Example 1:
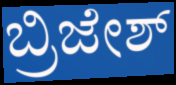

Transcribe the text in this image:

ಬ್ರಿಜೇಶ್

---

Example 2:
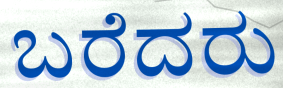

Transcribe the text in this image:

ಬರೆದರು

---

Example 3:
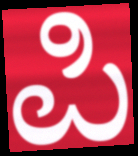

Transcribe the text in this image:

ಪಿ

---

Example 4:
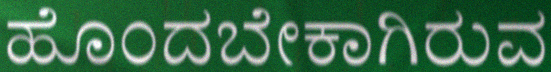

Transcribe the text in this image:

ಹೊಂದಬೇಕಾಗಿರುವ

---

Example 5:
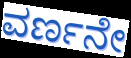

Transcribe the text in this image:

ವರ್ಣನೇ